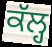
ਕੱਲ੍ਹ